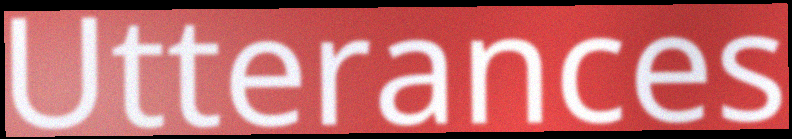
Utterances